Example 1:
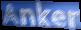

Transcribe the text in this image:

Anker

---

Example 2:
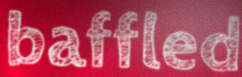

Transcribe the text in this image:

baffled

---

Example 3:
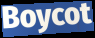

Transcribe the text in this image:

Boycot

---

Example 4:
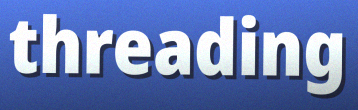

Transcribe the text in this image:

threading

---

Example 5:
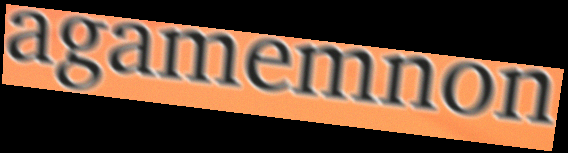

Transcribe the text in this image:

agamemnon